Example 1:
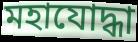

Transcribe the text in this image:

মহাযোদ্ধা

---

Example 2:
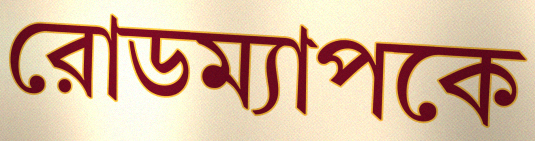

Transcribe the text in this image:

রোডম্যাপকে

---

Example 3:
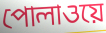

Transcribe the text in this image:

পোলাওয়ে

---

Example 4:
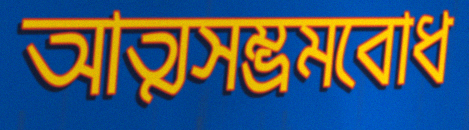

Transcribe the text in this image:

আত্মসম্ভ্রমবোধ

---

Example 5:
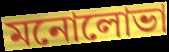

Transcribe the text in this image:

মনোলোভা